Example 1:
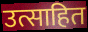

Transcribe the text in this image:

उत्साहित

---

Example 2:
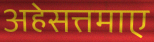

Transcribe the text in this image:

अहेसत्तमाए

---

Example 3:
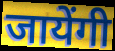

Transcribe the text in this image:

जायेंगी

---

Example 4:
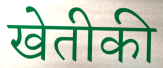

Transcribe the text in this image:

खेतीकी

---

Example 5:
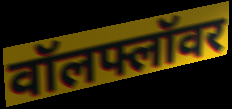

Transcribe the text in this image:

वॉलफ्लॉवर